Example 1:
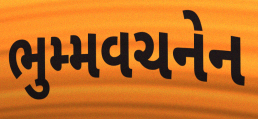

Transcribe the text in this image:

ભુમ્મવચનેન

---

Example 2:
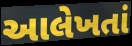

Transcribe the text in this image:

આલેખતાં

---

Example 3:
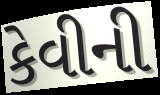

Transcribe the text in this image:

કેવીની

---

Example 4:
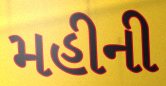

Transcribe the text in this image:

મહીની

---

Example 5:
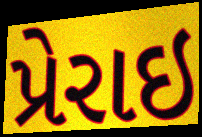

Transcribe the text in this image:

પ્રેરાઇ